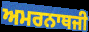
ਅਮਰਨਾਥਜੀ